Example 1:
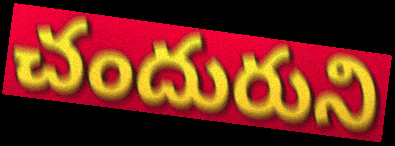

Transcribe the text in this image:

చందురుని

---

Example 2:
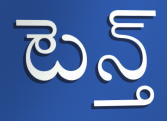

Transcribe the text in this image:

టెన్త్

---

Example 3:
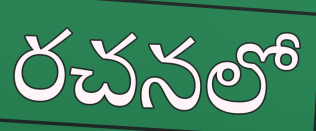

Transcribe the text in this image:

రచనలో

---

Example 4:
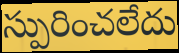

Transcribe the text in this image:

స్పురించలేదు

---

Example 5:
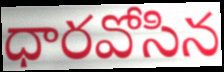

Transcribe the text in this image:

ధారవోసిన